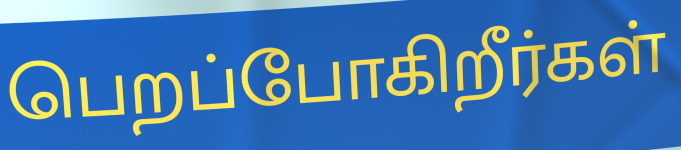
பெறப்போகிறீர்கள்